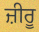
ਜ਼ੀਰੂ